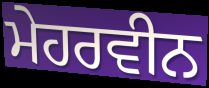
ਮੇਹਰਵੀਨ